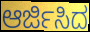
ಆರ್ಜಿಸಿದ